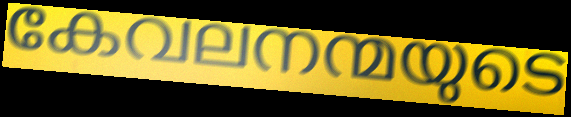
കേവലനന്മയുടെ